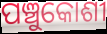
ପଞ୍ଚୁକୋଶୀ